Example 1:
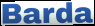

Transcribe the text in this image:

Barda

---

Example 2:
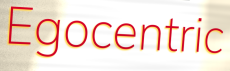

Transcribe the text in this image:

Egocentric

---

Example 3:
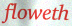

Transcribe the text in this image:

floweth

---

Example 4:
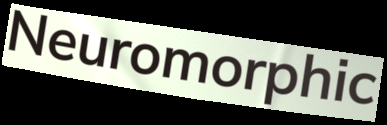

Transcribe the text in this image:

Neuromorphic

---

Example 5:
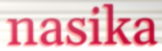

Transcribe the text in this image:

nasika